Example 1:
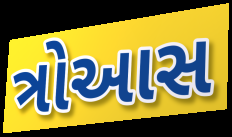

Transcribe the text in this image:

ત્રોઆસ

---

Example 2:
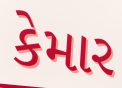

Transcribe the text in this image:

કેમાર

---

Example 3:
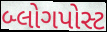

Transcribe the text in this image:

બ્લોગપોસ્ટ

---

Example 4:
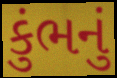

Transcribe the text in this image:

કુંભનું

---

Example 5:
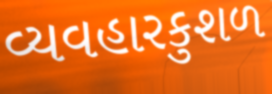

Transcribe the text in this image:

વ્યવહારકુશળ